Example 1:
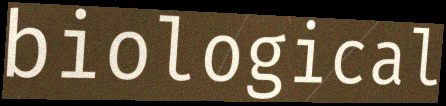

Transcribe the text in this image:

biological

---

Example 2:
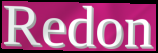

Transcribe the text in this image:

Redon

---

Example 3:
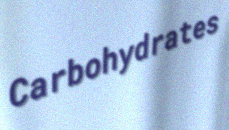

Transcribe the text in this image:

Carbohydrates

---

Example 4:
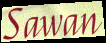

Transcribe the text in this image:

Sawan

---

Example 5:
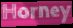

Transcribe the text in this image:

Horney